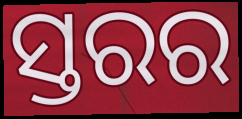
ସ୍ତରର